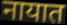
नायात